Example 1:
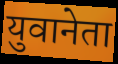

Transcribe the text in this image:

युवानेता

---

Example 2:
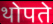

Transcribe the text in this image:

थोपते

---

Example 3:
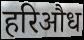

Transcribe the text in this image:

हरिऔध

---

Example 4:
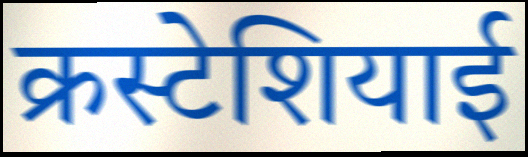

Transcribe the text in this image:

क्रस्टेशियाई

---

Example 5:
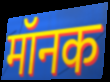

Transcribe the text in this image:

मॉनक